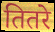
तितरे